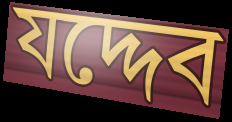
যদ্দেব